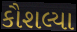
કૌશલ્યા